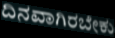
ದಿನವಾಗಿರಬೇಕು